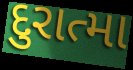
દુરાત્મા